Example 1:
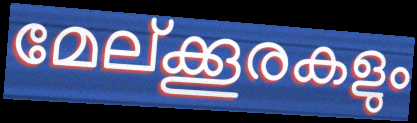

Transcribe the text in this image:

മേല്ക്കൂരകളും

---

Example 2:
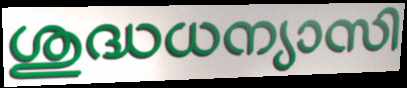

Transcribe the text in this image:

ശുദ്ധധന്യാസി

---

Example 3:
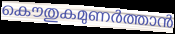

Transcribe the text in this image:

കൌതുകമുണർത്താൻ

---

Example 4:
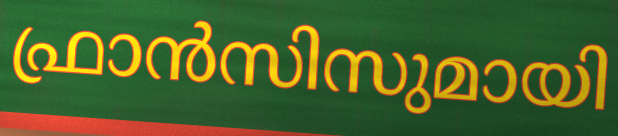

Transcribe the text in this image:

ഫ്രാൻസിസുമായി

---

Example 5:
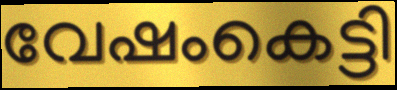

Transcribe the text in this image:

വേഷംകെട്ടി